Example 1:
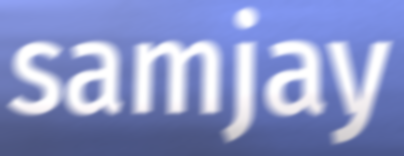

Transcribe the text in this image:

samjay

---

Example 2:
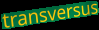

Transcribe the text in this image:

transversus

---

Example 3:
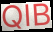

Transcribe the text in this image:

QIB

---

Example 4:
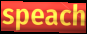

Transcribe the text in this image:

speach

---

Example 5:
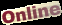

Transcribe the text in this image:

Online